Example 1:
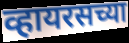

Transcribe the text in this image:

व्हायरसच्या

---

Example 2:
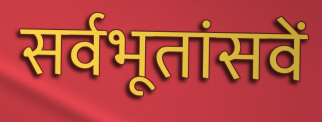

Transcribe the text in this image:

सर्वभूतांसवें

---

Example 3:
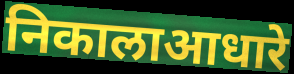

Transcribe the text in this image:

निकालाआधारे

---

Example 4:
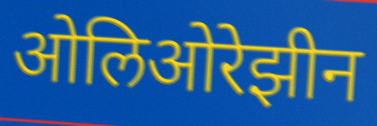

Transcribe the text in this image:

ओलिओरेझीन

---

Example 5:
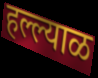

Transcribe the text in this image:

हल्ल्याळ